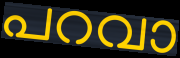
പറവാ